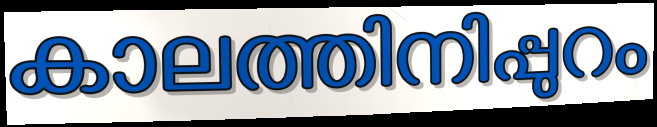
കാലത്തിനിപ്പുറം